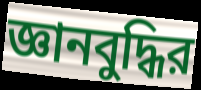
জ্ঞানবুদ্ধির